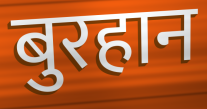
बुरहान